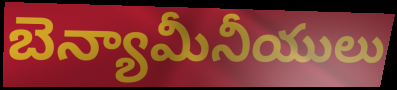
బెన్యామీనీయులు